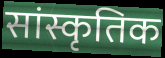
सांस्‍कृतिक